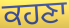
ਕਹਣਾ